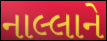
નાલ્લાને